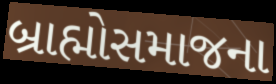
બ્રાહ્મોસમાજના